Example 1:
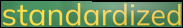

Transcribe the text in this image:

standardized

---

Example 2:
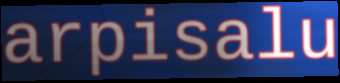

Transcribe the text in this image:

arpisalu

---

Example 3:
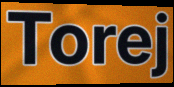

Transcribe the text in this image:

Torej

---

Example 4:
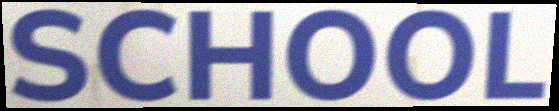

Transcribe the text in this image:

SCHOOL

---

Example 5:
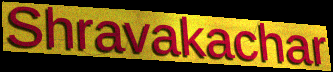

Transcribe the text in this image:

Shravakachar